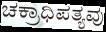
ಚಕ್ರಾಧಿಪತ್ಯವು